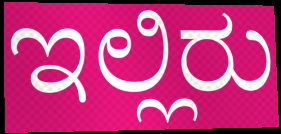
ಇಲ್ಲಿರು